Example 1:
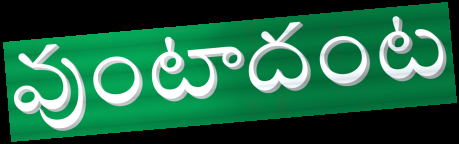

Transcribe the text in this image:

వుంటాదంట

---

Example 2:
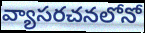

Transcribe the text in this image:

వ్యాసరచనలోనో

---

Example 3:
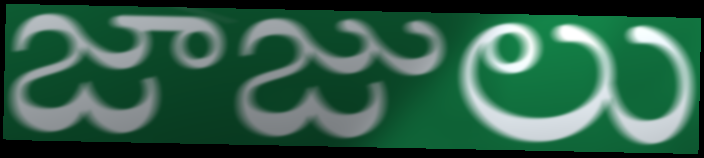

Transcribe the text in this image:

జాజులు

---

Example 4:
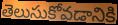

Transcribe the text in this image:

తెలుసుకోవడానికి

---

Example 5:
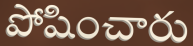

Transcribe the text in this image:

పోషించారు